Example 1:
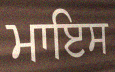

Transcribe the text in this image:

ਮਾਇਸ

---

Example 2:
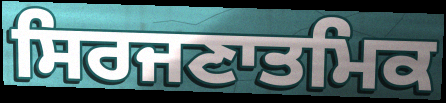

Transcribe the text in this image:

ਸਿਰਜਣਾਤਮਿਕ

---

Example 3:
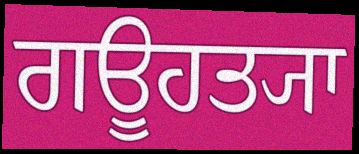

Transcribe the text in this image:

ਗਊਹਤ੍ਯਾ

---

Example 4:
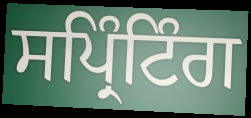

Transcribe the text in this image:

ਸਪ੍ਰਿੰਟਿੰਗ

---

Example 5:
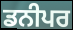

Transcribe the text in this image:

ਡਨੀਪਰ